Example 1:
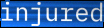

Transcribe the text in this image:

injured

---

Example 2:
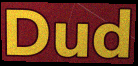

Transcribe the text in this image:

Dud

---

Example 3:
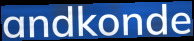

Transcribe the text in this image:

andkonde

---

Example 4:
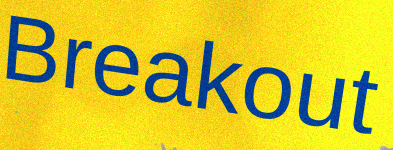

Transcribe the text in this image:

Breakout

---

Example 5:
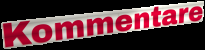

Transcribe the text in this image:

Kommentare